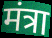
मंत्रा